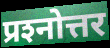
प्रश्‍नोत्तर